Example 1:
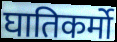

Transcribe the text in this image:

घातिकर्मो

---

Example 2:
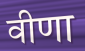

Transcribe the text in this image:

वीणा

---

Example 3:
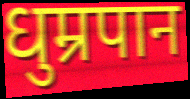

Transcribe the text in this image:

धुम्रपान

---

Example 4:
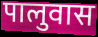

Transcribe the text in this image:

पालुवास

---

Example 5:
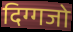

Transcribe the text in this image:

दिग्गजो